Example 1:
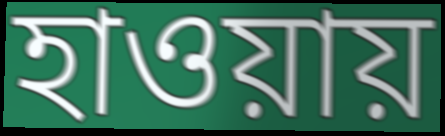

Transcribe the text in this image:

হাওয়ায়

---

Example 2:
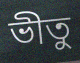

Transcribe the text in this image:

ভীতু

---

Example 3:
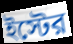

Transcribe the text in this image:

ইস্টের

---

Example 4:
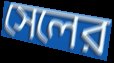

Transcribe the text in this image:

সেলের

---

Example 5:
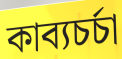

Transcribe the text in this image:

কাব্যচর্চা